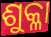
ଶୁକ୍ଳା